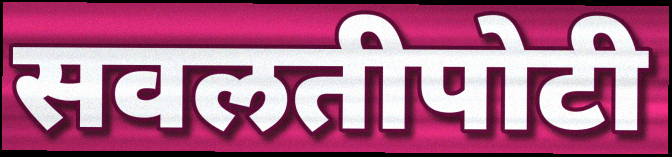
सवलतीपोटी